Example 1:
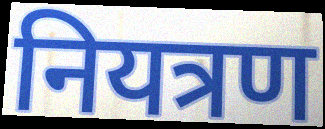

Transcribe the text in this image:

नियत्रण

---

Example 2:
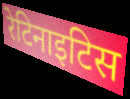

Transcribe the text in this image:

रेटिनाइटिस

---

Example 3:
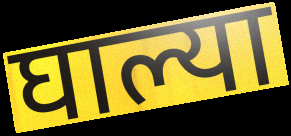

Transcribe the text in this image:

घाल्या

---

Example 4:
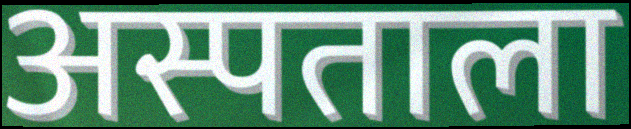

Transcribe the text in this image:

अस्पताला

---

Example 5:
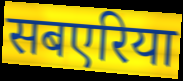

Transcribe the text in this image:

सबएरिया